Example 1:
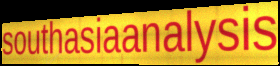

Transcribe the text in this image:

southasiaanalysis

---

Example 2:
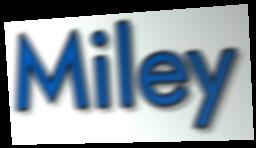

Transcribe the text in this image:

Miley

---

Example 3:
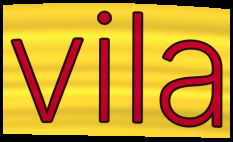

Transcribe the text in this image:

vila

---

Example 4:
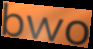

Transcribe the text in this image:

bwo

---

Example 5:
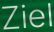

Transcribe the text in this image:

Ziel